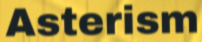
Asterism